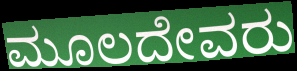
ಮೂಲದೇವರು